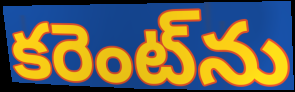
కరెంట్‌ను